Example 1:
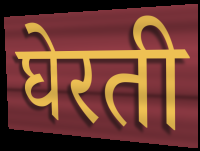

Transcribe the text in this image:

घेरती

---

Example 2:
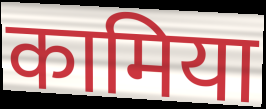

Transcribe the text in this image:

कामिया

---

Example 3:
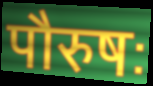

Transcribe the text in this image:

पौरुषः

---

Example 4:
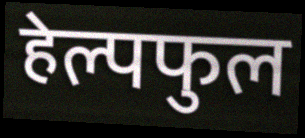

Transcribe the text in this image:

हेल्पफुल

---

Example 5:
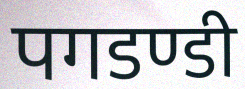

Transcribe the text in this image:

पगडण्डी